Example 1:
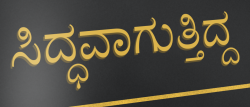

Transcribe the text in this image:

ಸಿದ್ಧವಾಗುತ್ತಿದ್ದ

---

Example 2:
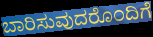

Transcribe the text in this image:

ಬಾರಿಸುವುದರೊಂದಿಗೆ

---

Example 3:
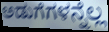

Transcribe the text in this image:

ಅಡುಗೆಗಳನ್ನೆಲ್ಲ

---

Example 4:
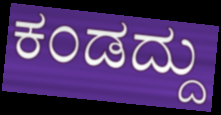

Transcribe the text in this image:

ಕಂಡದ್ದು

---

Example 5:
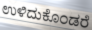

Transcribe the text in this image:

ಉಳಿದುಕೊಂಡರೆ